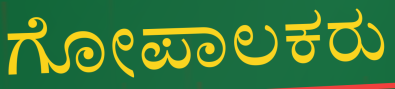
ಗೋಪಾಲಕರು